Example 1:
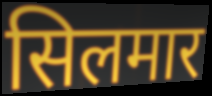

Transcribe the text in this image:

सिलमार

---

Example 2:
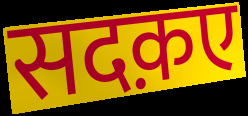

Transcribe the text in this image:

सदक़ए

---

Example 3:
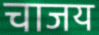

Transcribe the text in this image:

चाजय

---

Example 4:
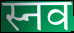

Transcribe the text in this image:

स्नव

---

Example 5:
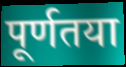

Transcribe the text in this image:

पूर्णतया